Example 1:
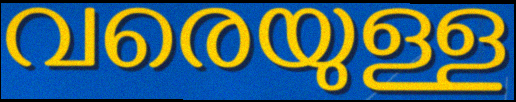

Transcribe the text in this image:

വരെയുള്ള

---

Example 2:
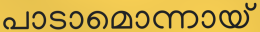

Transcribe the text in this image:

പാടാമൊന്നായ്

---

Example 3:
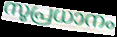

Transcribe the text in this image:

സുപ്രധാനം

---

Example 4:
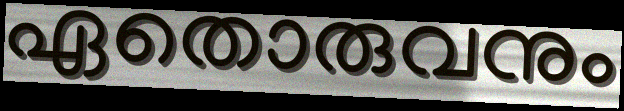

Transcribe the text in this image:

ഏതൊരുവനും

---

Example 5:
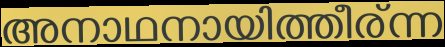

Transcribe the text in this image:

അനാഥനായിത്തീര്ന്ന